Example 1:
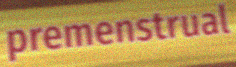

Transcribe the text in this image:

premenstrual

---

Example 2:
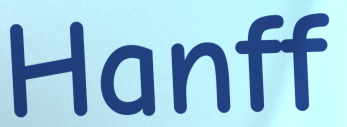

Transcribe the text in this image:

Hanff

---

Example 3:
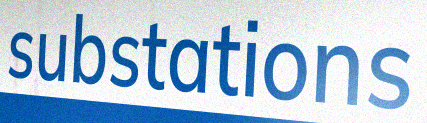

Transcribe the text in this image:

substations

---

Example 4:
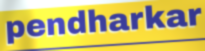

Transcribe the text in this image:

pendharkar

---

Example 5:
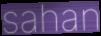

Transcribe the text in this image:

sahan